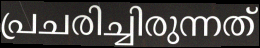
പ്രചരിച്ചിരുന്നത്